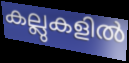
കല്ലുകളിൽ